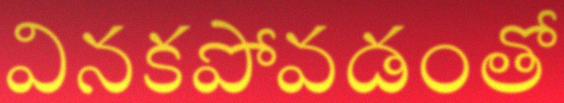
వినకపోవడంతో